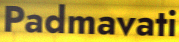
Padmavati